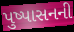
પુષ્પાસનની